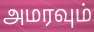
அமரவும்